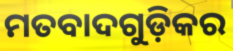
ମତବାଦଗୁଡ଼ିକର